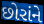
છોરાંને